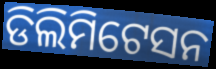
ଡିଲିମିଟେସନ